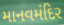
માનવમંદિર